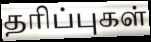
தரிப்புகள்